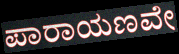
ಪಾರಾಯಣವೇ